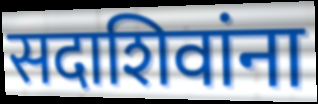
सदाशिवांना